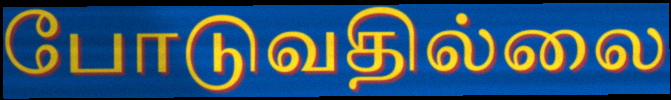
போடுவதில்லை